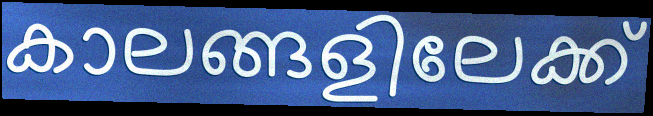
കാലങ്ങളിലേക്ക്